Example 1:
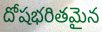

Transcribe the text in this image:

దోషభరితమైన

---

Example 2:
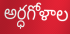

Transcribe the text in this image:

అర్ధగోళాల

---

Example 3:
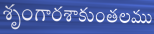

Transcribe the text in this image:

శృంగారశాకుంతలము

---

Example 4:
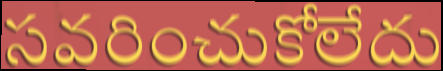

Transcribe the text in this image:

సవరించుకోలేదు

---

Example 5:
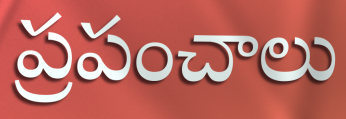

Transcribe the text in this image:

ప్రపంచాలు